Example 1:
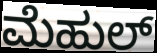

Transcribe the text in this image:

ಮೆಹುಲ್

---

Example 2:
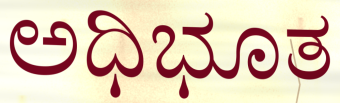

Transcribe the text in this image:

ಅಧಿಭೂತ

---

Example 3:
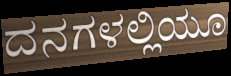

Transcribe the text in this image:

ದನಗಳಲ್ಲಿಯೂ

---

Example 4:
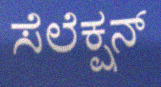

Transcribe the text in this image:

ಸೆಲೆಕ್ಷನ್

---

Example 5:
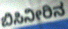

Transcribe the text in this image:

ಬಿಸಿನೀರಿನ